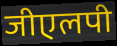
जीएलपी